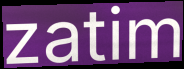
zatim